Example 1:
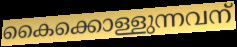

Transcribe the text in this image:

കൈക്കൊള്ളുന്നവന്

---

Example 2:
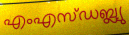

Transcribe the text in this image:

എംഎസ്ഡബ്ല്യു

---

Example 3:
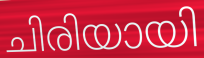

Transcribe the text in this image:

ചിരിയായി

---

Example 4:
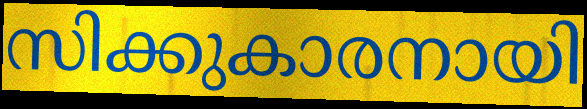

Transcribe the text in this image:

സിക്കുകാരനായി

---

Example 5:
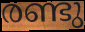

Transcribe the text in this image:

രണ്ടു